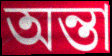
অন্তা